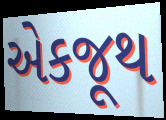
એકજૂથ